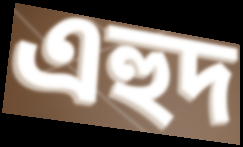
এহুদ